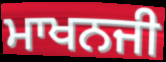
ਮਾਖਨਜੀ